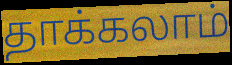
தாக்கலாம்